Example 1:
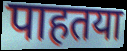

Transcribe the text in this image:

पाहतया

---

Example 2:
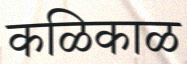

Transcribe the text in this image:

कळिकाळ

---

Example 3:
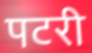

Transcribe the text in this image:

पटरी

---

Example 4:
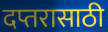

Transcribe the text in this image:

दप्तरासाठी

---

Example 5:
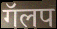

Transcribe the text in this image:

गॅलप